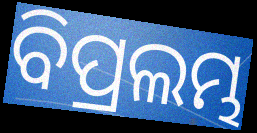
ବିପ୍ରଲମ୍ଭ